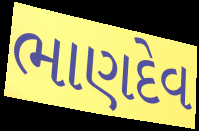
ભાણદેવ